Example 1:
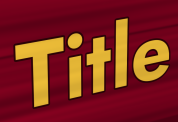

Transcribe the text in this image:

Title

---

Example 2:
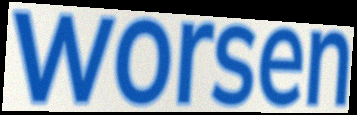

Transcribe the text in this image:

worsen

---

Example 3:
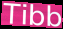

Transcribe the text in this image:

Tibb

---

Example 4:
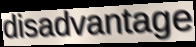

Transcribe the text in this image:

disadvantage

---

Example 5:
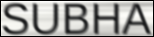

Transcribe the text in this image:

SUBHA